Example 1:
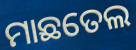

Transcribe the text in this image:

ମାଛତେଲ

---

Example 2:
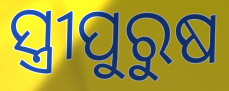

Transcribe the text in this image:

ସ୍ତ୍ରୀପୁରୁଷ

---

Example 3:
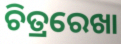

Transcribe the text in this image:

ଚିତ୍ରରେଖା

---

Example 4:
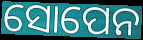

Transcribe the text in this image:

ସୋପେନ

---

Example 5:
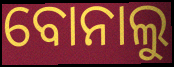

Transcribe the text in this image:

ବୋନାଲୁ